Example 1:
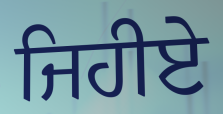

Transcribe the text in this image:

ਜਿਹੀਏ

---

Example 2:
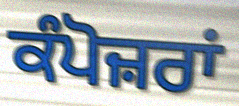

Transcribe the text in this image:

ਕੰਪੋਜ਼ਰਾਂ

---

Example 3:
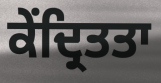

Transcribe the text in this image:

ਕੇਂਦ੍ਰਿਤਤਾ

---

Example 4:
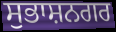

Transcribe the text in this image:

ਸੁਭਾਸ਼ਨਗਰ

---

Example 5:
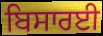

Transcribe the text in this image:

ਬਿਸਾਰਈ